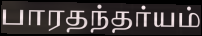
பாரதந்தர்யம்